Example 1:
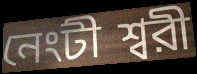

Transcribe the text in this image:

নেংটীশ্বরী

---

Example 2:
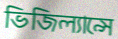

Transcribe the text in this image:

ভিজিল্যান্সে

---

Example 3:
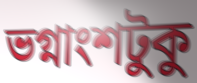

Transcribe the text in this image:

ভগ্নাংশটুকু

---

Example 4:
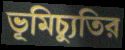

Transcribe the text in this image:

ভূমিচ্যুতির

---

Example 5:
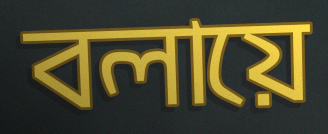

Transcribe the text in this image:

বলায়ে